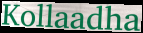
Kollaadha